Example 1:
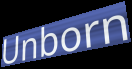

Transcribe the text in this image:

Unborn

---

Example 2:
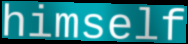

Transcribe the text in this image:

himself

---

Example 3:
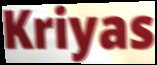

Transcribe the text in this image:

Kriyas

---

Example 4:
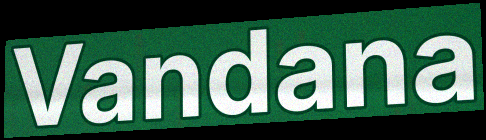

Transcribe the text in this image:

Vandana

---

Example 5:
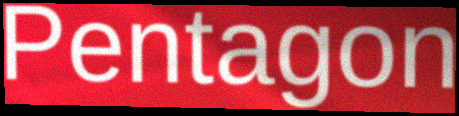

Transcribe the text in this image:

Pentagon